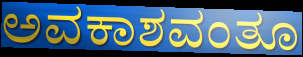
ಅವಕಾಶವಂತೂ